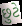
છુટે